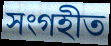
সংগহীত